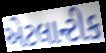
એટલાન્ટીક